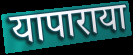
यापाराया